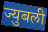
ज्युबली